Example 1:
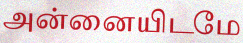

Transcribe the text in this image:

அன்னையிடமே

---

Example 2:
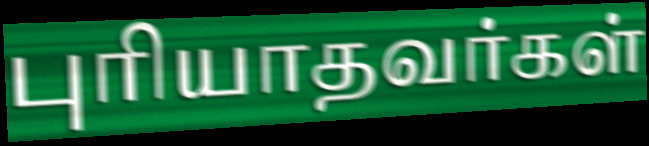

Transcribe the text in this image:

புரியாதவர்கள்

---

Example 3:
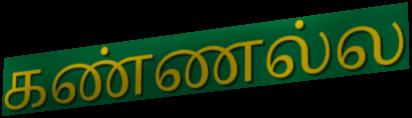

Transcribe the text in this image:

கண்ணல்ல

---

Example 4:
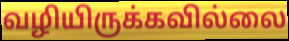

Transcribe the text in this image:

வழியிருக்கவில்லை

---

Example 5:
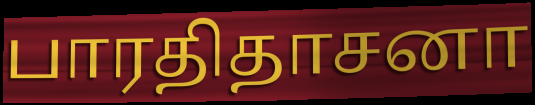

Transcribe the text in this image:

பாரதிதாசனா